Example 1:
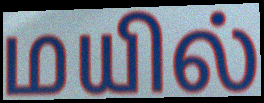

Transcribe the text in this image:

மயில்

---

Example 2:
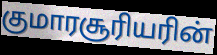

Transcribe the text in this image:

குமாரசூரியரின்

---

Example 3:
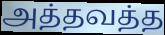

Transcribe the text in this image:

அத்தவத்த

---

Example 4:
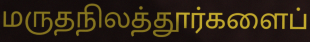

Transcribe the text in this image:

மருதநிலத்தூர்களைப்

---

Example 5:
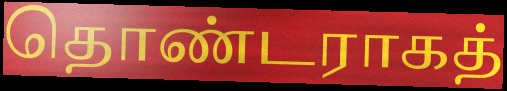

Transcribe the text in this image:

தொண்டராகத்